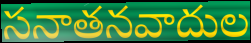
సనాతనవాదుల